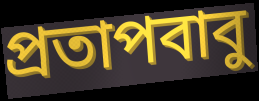
প্রতাপবাবু